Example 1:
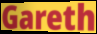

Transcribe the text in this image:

Gareth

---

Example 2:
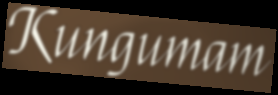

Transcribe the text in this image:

Kungumam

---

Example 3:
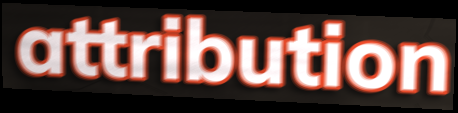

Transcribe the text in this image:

attribution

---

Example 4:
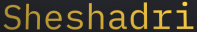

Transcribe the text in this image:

Sheshadri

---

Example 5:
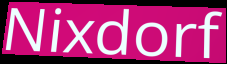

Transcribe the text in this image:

Nixdorf